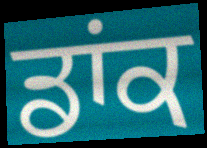
ਡਾਂਕ